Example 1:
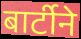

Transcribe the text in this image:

बार्टीने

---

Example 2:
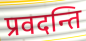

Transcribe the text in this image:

प्रवदन्ति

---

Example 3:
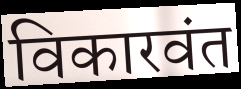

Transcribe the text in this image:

विकारवंत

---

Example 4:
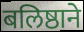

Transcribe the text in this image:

बलिष्ठाने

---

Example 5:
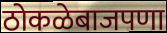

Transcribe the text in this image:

ठोकळेबाजपणा